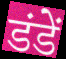
डंडें